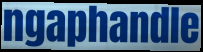
ngaphandle